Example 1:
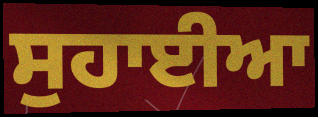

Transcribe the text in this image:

ਸੁਹਾਈਆ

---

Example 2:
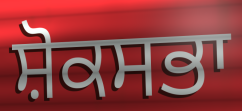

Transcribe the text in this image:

ਸ਼ੋਕਸਭਾ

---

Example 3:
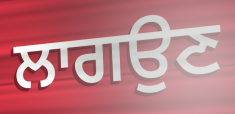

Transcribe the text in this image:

ਲਾਗਉਣ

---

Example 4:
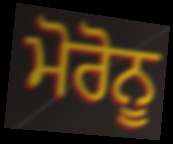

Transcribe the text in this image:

ਮੋਰੋਨੂ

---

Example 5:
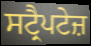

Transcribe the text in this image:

ਸਟ੍ਰੈਪਟੇਜ਼